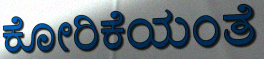
ಕೋರಿಕೆಯಂತೆ